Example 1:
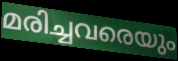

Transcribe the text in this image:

മരിച്ചവരെയും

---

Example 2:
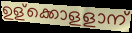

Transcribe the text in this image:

ഉള്ക്കൊളളാന്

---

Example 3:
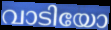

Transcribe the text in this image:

വാടിയോ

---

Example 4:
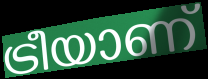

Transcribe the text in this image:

ട്രീയാണ്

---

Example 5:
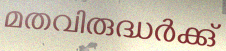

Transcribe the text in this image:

മതവിരുദ്ധർക്കു്